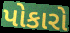
પોકારો